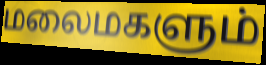
மலைமகளும்